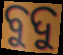
ବୁଦୁ